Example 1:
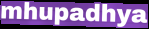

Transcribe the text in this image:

mhupadhya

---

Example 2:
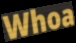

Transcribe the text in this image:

Whoa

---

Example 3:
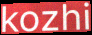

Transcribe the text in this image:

kozhi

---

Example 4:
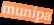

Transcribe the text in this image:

munipa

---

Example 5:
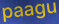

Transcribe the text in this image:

paagu